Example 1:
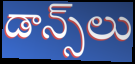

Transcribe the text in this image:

డాన్స్‌లు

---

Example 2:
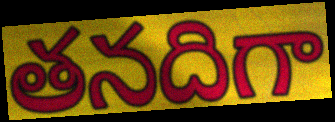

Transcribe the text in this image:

తనదిగా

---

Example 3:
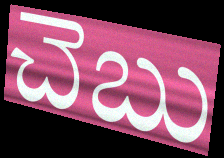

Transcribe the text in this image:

చెబు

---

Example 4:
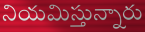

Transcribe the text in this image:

నియమిస్తున్నారు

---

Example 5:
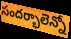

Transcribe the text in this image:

సందర్భాలెన్నో